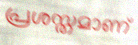
പ്രശസ്തമാണ്